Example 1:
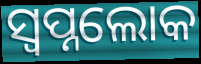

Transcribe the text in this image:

ସ୍ଵପ୍ନଲୋକ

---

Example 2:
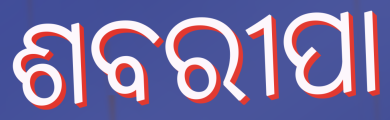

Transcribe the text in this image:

ଶବରୀପା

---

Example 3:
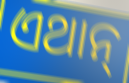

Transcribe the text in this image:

ଏଥାନ୍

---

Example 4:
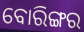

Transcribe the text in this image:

ବୋରିଙ୍ଗର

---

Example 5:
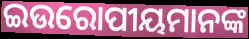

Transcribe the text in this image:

ଇଉରୋପୀୟମାନଙ୍କ